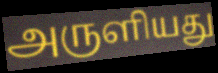
அருளியது